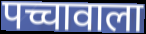
पच्चावाला